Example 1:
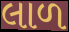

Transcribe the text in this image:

લાળ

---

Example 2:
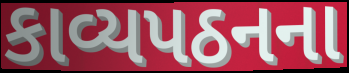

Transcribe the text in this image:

કાવ્યપઠનના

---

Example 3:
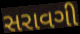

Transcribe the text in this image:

સરાવગી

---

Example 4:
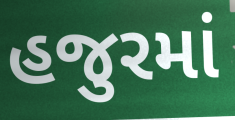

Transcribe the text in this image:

હજુરમાં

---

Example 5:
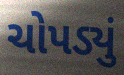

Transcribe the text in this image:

ચોપડ્યું